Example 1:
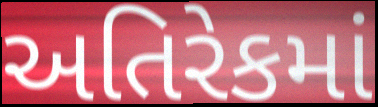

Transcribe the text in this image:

અતિરેકમાં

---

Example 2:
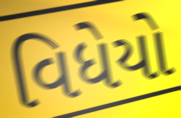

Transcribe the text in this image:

વિધેયો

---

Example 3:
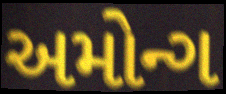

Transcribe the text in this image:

અમોન્ગ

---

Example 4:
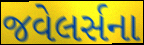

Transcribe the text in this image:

જવેલર્સના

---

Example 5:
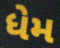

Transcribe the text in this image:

ધેમ